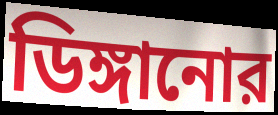
ডিঙ্গানোর